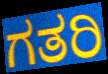
ಗತರಿ